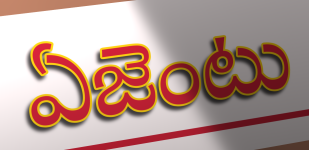
ఏజెంటు